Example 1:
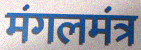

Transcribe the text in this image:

मंगलमंत्र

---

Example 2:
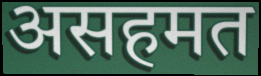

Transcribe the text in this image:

असहमत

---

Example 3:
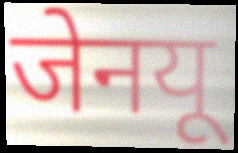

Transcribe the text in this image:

जेनयू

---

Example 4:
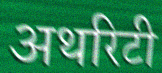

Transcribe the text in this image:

अथरिटी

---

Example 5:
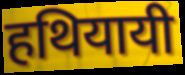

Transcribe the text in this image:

हथियायी